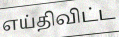
எய்திவிட்ட